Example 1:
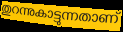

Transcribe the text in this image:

തുറന്നുകാട്ടുന്നതാണ്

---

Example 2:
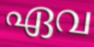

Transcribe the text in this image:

ഏവ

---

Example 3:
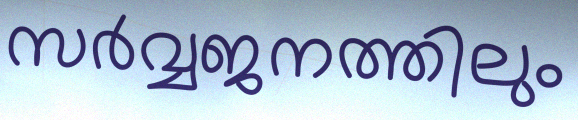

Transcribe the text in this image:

സർവ്വജനത്തിലും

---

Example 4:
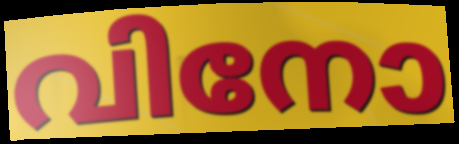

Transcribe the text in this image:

വിനോ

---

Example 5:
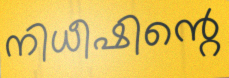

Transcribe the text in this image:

നിധീഷിന്റെ